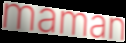
maman